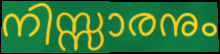
നിസ്സാരനും